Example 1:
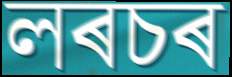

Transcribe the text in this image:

লৰচৰ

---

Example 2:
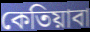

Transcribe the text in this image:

কেতিয়াবা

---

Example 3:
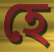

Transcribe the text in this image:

হে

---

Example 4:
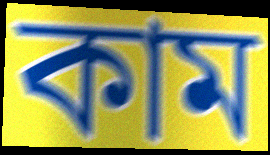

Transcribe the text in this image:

কাম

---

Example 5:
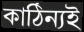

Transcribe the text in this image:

কাঠিন্যই